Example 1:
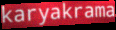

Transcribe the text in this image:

karyakrama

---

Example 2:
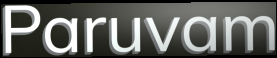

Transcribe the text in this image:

Paruvam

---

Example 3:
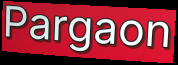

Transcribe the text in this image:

Pargaon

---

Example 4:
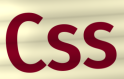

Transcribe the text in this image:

Css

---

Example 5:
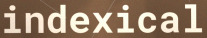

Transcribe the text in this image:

indexical